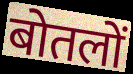
बोतलों